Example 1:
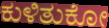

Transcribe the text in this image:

ಕುಳಿತುಕೋ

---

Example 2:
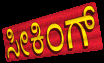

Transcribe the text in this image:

ಸೀಕಿಂಗ್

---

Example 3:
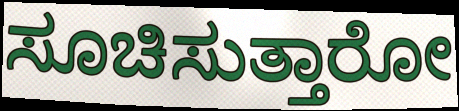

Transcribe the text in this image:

ಸೂಚಿಸುತ್ತಾರೋ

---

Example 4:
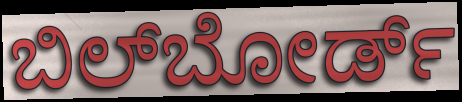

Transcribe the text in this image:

ಬಿಲ್‌ಬೋರ್ಡ್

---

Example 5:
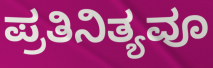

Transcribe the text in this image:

ಪ್ರತಿನಿತ್ಯವೂ